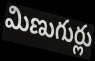
మిణుగుర్లు